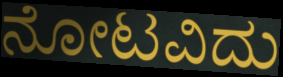
ನೋಟವಿದು